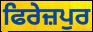
ਫਿਰੇਜ਼ਪੁਰ